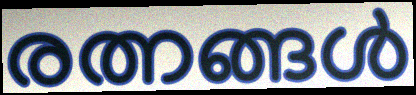
രത്നങ്ങൾ